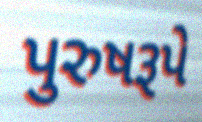
પુરુષરૂપે